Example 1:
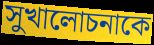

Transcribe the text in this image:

সুখালোচনাকে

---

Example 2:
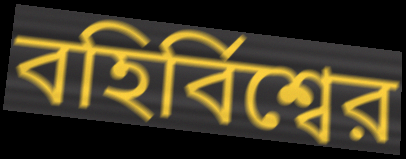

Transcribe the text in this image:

বহির্বিশ্বের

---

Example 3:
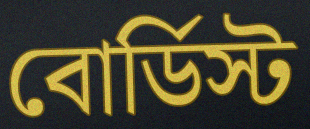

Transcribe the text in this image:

বোর্ডিস্ট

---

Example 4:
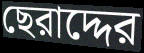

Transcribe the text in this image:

ছেরাদ্দের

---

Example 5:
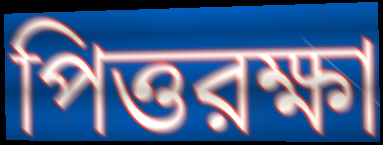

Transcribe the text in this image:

পিত্তরক্ষা